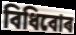
বিধিবোৰ